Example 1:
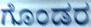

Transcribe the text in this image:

ಗೊಂಡರ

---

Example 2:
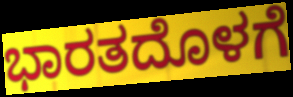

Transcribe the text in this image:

ಭಾರತದೊಳಗೆ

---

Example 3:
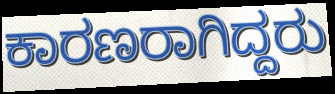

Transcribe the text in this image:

ಕಾರಣರಾಗಿದ್ದರು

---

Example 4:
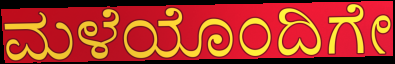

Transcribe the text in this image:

ಮಳೆಯೊಂದಿಗೇ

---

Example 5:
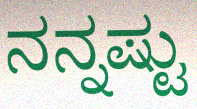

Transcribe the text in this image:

ನನ್ನಷ್ಟು